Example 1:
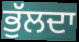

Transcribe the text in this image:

ਭੁੱਲਦਾ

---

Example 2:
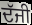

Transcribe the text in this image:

ਦੱਜੀ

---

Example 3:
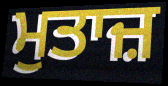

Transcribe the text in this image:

ਮੁਤਾਜ਼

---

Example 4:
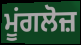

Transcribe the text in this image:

ਮੂਂਗਲੋਜ਼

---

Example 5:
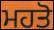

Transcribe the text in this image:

ਮਹਤੋ